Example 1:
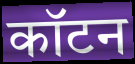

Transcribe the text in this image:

कॉटन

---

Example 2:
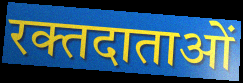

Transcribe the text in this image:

रक्तदाताओं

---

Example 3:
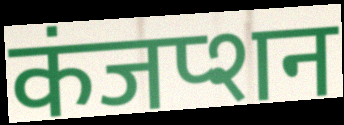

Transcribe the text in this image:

कंजप्शन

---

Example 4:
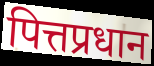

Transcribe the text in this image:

पित्तप्रधान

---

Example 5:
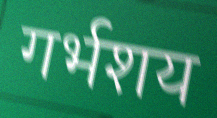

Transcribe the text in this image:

गर्भशय